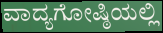
ವಾದ್ಯಗೋಷ್ಠಿಯಲ್ಲಿ